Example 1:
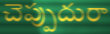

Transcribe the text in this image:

చెప్పుదురా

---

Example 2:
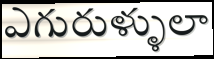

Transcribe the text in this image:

ఎగురుళ్ళులా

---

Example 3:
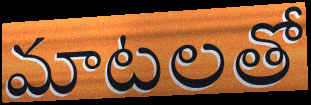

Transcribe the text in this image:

మాటలతో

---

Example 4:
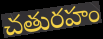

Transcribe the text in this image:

చతురహం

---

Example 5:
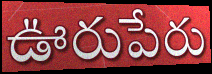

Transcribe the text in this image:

ఊరుపేరు